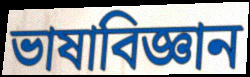
ভাষাবিজ্ঞান